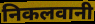
निकलवानी